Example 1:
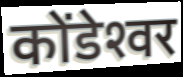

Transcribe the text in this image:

कोंडेश्वर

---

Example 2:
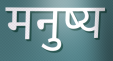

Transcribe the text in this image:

मनुष्य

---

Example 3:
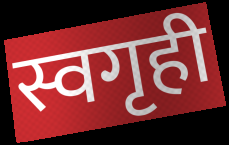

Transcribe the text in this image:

स्वगृही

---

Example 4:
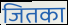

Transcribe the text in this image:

जितका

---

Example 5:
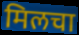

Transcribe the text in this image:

मिलचा